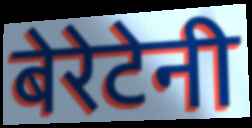
बेरेटेनी